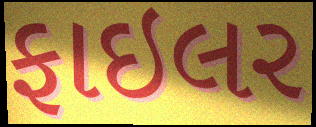
ફાઇલર